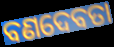
ବଣଦେବତା